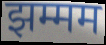
झम्मम